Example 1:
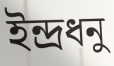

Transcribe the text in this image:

ইন্দ্রধনু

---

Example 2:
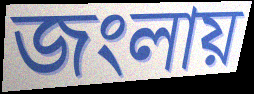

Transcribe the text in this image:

জংলায়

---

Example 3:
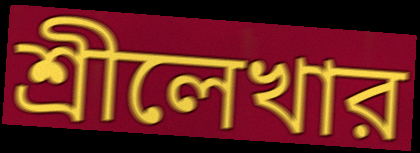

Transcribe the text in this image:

শ্রীলেখার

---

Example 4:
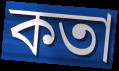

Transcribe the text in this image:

কতা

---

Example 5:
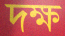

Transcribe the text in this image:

দক্ষ